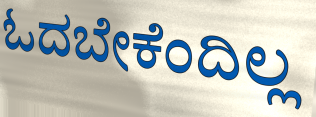
ಓದಬೇಕೆಂದಿಲ್ಲ